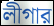
লীগার